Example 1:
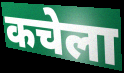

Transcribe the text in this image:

कचेला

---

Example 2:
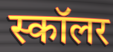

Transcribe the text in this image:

स्कॉलर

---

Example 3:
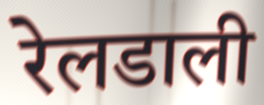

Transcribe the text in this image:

रेलडाली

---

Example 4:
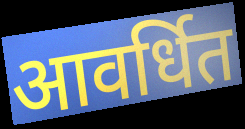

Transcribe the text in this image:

आवर्धित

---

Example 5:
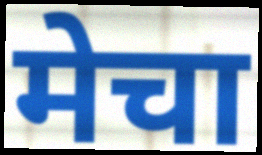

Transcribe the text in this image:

मेचा